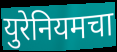
युरेनियमचा